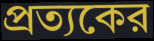
প্রত্যকের